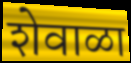
शेवाळा